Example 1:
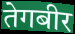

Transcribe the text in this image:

तेगबीर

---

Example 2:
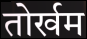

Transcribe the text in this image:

तोर्खम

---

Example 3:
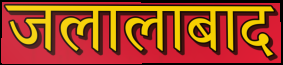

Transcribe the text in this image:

जलालाबाद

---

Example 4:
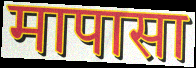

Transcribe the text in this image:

मापासा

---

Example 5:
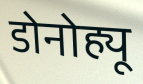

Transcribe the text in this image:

डोनोह्यू